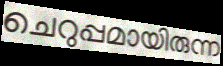
ചെറുപ്പമായിരുന്ന